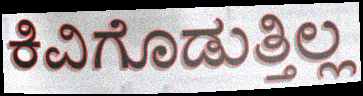
ಕಿವಿಗೊಡುತ್ತಿಲ್ಲ